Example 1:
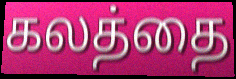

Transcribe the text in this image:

கலத்தை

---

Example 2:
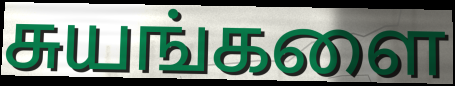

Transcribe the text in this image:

சுயங்களை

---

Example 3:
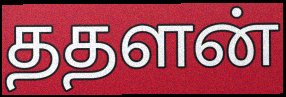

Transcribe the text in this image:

ததளன்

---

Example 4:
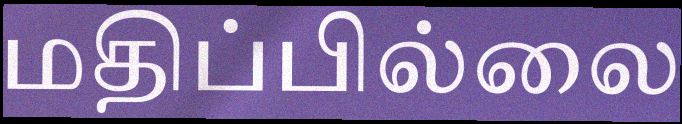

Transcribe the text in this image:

மதிப்பில்லை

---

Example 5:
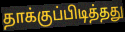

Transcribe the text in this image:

தாக்குப்பிடித்தது